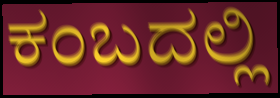
ಕಂಬದಲ್ಲಿ